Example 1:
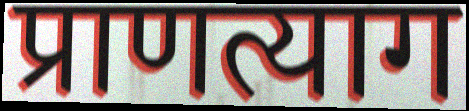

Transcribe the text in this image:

प्राणत्याग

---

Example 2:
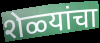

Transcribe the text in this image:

शेळ्यांचा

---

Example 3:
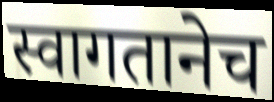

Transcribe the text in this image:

स्वागतानेच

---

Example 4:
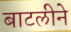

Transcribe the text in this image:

बाटलीने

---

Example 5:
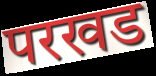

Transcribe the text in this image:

परखड